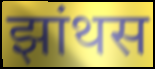
झांथस